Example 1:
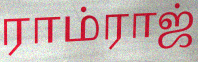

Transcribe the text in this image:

ராம்ராஜ்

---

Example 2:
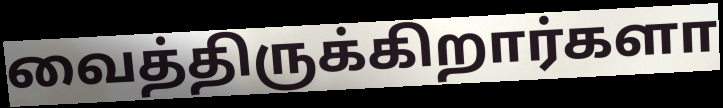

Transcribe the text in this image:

வைத்திருக்கிறார்களா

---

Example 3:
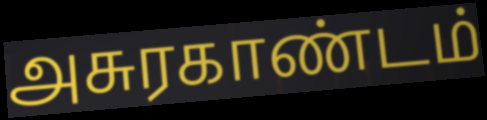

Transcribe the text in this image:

அசுரகாண்டம்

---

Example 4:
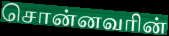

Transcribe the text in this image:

சொன்னவரின்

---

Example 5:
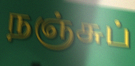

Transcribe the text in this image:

நஞ்சுப்